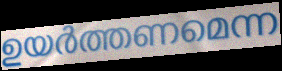
ഉയർത്തണമെന്ന